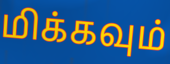
மிக்கவும்